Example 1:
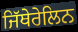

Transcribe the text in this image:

ਜਿੱਥੇਰੇਲਿਨ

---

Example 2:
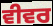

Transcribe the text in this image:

ਵੀਵਰ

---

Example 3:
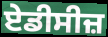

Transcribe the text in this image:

ਏਡੀਸੀਜ਼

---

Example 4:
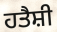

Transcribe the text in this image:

ਹਤੈਸ਼ੀ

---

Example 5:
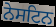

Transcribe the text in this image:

ਨੇਸਟਿਨ